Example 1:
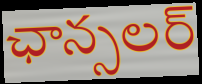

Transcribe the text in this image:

ఛాన్సలర్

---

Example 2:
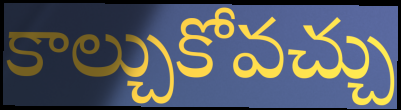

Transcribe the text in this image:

కాల్చుకోవచ్చు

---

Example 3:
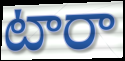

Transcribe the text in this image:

టారా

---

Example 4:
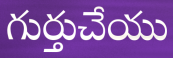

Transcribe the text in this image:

గుర్తుచేయు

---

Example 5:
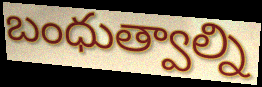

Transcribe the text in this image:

బంధుత్వాల్ని